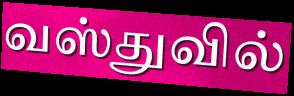
வஸ்துவில்